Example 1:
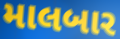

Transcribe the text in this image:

માલબાર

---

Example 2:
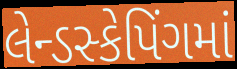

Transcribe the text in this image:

લેન્ડસ્કેપિંગમાં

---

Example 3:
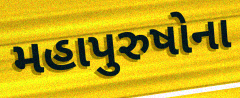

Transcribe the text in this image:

મહાપુરુષોના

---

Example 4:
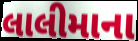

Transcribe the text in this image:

લાલીમાના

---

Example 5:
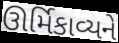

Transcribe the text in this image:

ઊર્મિકાવ્યને